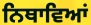
ਨਿਥਾਵਿਆਂ